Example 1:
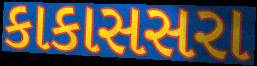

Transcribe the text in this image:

કાકાસસરા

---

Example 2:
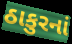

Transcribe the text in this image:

ઠાકુરનાં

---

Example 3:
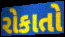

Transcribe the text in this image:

રોકાતો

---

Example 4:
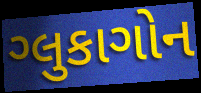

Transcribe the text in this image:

ગ્લુકાગોન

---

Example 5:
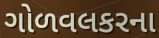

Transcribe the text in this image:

ગોળવલકરના